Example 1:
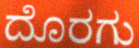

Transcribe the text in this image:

ದೊರಗು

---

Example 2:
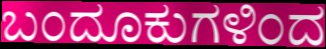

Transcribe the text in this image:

ಬಂದೂಕುಗಳಿಂದ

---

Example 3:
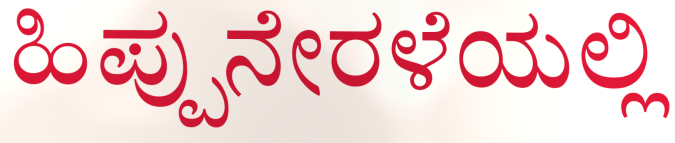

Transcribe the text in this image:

ಹಿಪ್ಪುನೇರಳೆಯಲ್ಲಿ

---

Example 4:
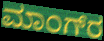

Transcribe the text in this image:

ಮಾಂಗ್‌ರ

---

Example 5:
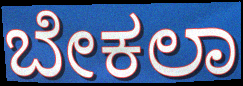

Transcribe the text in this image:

ಬೇಕಲಾ